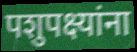
पशुपक्ष्यांना